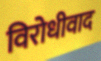
विरोधीवाद